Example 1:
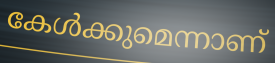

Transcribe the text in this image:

കേൾക്കുമെന്നാണ്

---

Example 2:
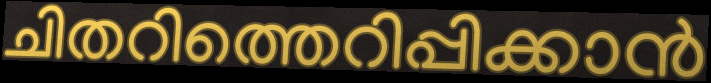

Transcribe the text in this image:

ചിതറിത്തെറിപ്പിക്കാൻ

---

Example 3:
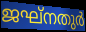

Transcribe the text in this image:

ജഘ്നതുർ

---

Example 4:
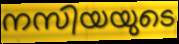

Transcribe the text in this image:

നസിയയുടെ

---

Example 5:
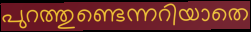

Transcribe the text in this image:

പുറത്തുണ്ടെന്നറിയാതെ